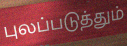
புலப்படுத்தும்